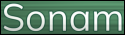
Sonam